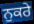
ਨੁਕਰੇ